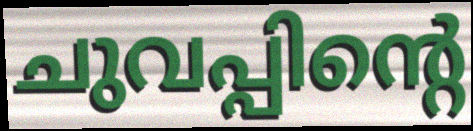
ചുവപ്പിന്റെ